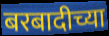
बरबादीच्या